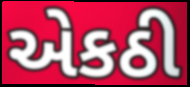
એકઠી